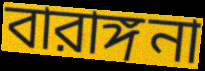
বারাঙ্গনা